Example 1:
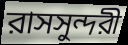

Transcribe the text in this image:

রাসসুন্দরী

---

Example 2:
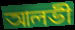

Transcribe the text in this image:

আলভী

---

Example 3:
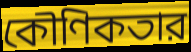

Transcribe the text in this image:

কৌণিকতার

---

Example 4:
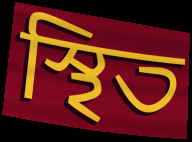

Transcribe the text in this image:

স্থিত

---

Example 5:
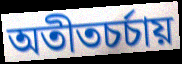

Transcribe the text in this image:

অতীতচর্চায়